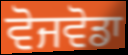
ਵੋਜਵੋਡਾ